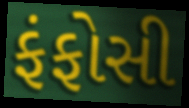
ફંફોસી